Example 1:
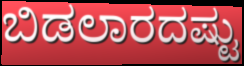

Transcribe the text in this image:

ಬಿಡಲಾರದಷ್ಟು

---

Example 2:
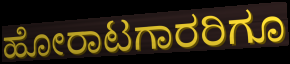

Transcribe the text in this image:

ಹೋರಾಟಗಾರರಿಗೂ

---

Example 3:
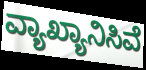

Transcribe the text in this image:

ವ್ಯಾಖ್ಯಾನಿಸಿವೆ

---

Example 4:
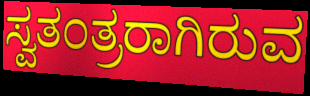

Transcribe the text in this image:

ಸ್ವತಂತ್ರರಾಗಿರುವ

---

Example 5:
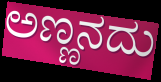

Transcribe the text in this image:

ಅಣ್ಣನದು